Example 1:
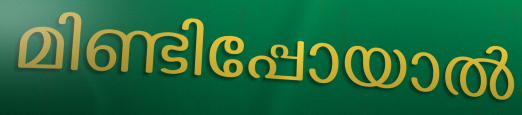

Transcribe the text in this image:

മിണ്ടിപ്പോയാൽ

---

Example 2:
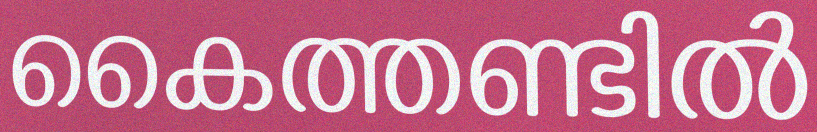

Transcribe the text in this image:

കൈത്തണ്ടിൽ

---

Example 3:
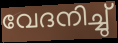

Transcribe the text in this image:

വേദനിച്ചു്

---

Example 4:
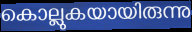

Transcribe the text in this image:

കൊല്ലുകയായിരുന്നു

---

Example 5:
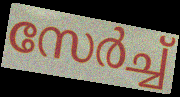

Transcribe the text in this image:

സേർച്ച്